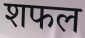
शफल